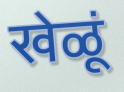
खेळूं